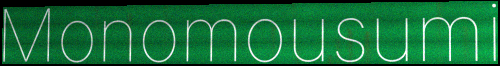
Monomousumi